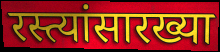
रस्त्यांसारख्या